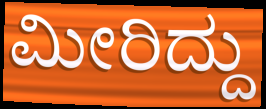
ಮೀರಿದ್ದು